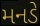
મનડે